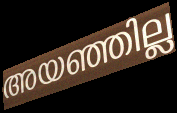
അയഞ്ഞില്ല